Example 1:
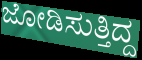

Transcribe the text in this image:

ಜೋಡಿಸುತ್ತಿದ್ದ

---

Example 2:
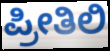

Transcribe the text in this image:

ಪ್ರೀತಿಲಿ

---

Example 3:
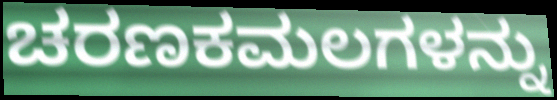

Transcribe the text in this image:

ಚರಣಕಮಲಗಳನ್ನು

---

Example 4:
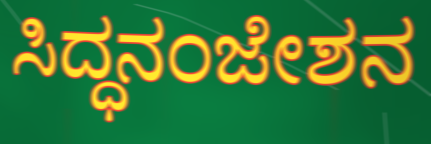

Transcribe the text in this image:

ಸಿದ್ಧನಂಜೇಶನ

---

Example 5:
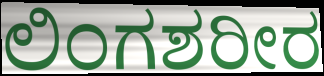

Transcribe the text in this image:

ಲಿಂಗಶರೀರ